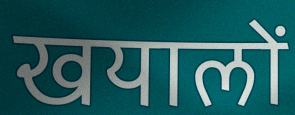
खयालों